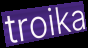
troika